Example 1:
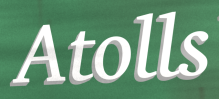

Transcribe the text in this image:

Atolls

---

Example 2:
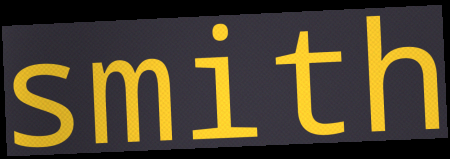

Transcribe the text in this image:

smith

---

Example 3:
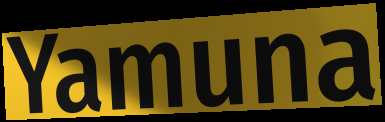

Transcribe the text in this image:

Yamuna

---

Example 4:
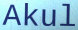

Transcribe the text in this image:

Akul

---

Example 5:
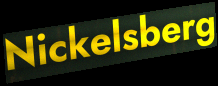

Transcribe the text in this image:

Nickelsberg